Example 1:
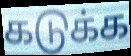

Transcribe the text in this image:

கடுக்க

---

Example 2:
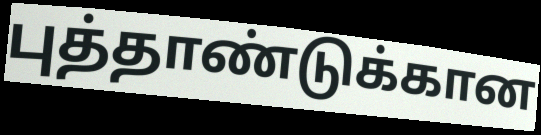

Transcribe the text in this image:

புத்தாண்டுக்கான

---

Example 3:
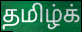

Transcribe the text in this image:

தமிழ்க்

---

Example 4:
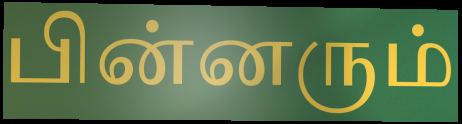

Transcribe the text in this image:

பின்னரும்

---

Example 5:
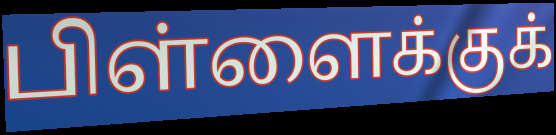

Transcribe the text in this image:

பிள்ளைக்குக்